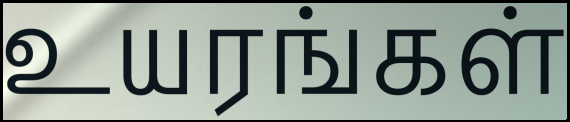
உயரங்கள்